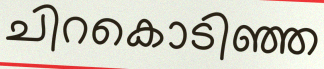
ചിറകൊടിഞ്ഞ